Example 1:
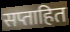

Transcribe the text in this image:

सप्ताहित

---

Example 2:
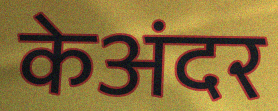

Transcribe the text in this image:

केअंदर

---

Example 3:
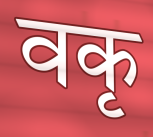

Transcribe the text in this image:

वकृ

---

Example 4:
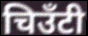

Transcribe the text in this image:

चिउँटी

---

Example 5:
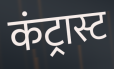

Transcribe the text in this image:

कंट्रास्ट